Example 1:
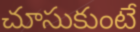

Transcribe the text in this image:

చూసుకుంటే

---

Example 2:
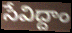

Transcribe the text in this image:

సేవిద్దాం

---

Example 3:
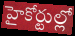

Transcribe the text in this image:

హైకోర్టుల్లో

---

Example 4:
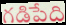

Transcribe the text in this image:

గడిపేది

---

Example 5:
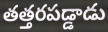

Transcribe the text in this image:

తత్తరపడ్డాడు